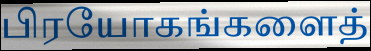
பிரயோகங்களைத்